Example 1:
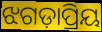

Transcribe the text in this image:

ଝଗଡ଼ାପ୍ରିୟ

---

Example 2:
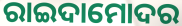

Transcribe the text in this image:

ରାଇଦାମୋଦର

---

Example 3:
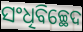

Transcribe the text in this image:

ସଂଧିବିଚ୍ଛେଦ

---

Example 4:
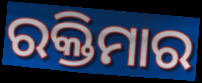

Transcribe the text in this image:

ରକ୍ତିମାର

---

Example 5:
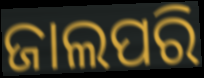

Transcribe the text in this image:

ଜାଲପରି